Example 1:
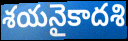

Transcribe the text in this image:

శయనైకాదశి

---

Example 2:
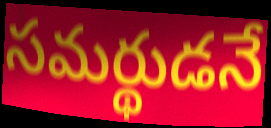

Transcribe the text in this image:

సమర్థుడనే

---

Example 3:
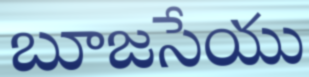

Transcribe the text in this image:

బూజసేయు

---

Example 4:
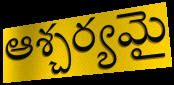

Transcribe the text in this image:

ఆశ్చర్యమై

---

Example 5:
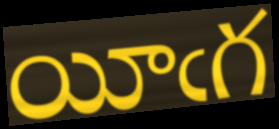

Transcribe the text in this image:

యీఁగ